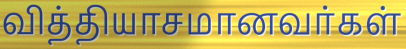
வித்தியாசமானவர்கள்